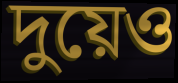
দুয়েও